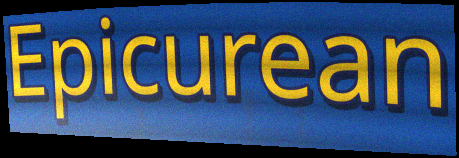
Epicurean